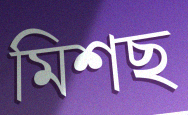
মিশছ